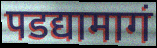
पडद्यामागं